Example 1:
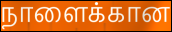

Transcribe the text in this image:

நாளைக்கான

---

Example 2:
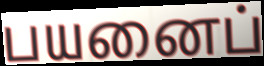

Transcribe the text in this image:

பயனைப்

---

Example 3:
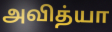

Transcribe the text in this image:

அவித்யா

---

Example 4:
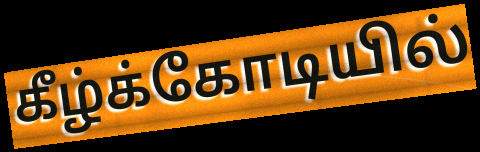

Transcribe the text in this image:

கீழ்க்கோடியில்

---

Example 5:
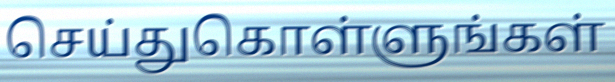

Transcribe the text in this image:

செய்துகொள்ளுங்கள்